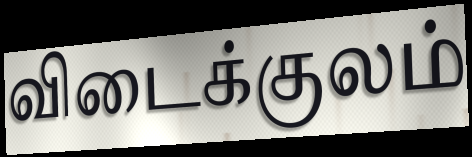
விடைக்குலம்